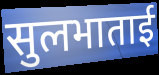
सुलभाताई